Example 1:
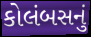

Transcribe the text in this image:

કોલંબસનું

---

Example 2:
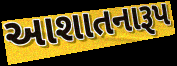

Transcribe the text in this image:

આશાતનારૂપ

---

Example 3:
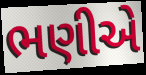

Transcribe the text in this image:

ભણીએ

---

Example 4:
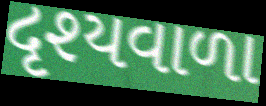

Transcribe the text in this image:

દૃશ્યવાળા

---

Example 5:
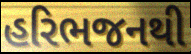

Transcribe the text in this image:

હરિભજનથી